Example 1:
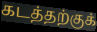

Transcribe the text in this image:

கடத்தற்குக்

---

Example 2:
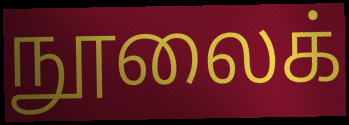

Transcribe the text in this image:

நூலைக்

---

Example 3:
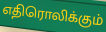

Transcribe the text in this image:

எதிரொலிக்கும்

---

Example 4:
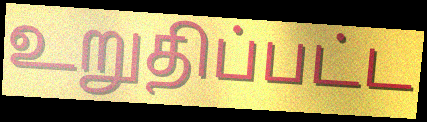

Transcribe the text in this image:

உறுதிப்பட்ட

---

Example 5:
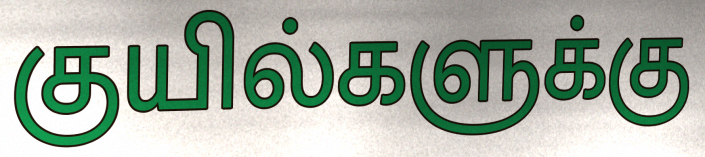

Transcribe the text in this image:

குயில்களுக்கு